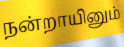
நன்றாயினும்